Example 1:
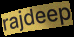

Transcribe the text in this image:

rajdeep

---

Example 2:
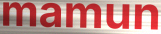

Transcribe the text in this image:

mamun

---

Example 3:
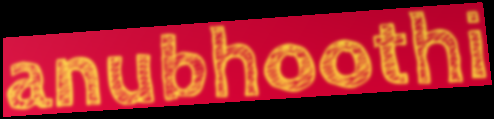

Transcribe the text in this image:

anubhoothi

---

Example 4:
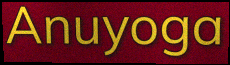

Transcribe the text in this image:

Anuyoga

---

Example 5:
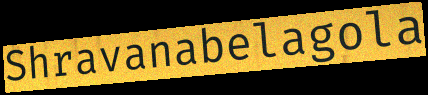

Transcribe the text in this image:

Shravanabelagola